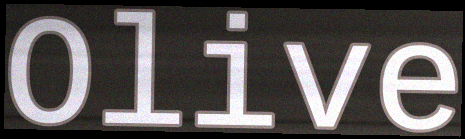
Olive